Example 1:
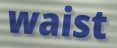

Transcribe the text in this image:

waist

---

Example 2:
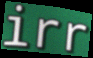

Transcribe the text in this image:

irr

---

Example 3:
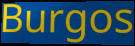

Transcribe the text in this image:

Burgos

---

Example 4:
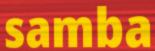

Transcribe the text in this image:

samba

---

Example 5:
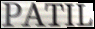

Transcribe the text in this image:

PATIL